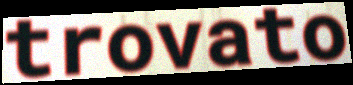
trovato